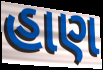
હાણ